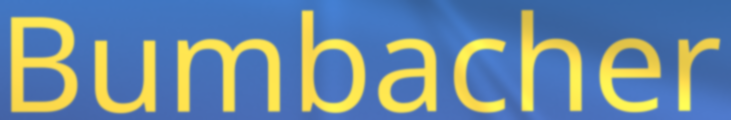
Bumbacher